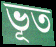
ভূত